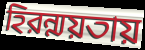
হিরন্ময়তায়